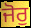
ਜੋਰੁ